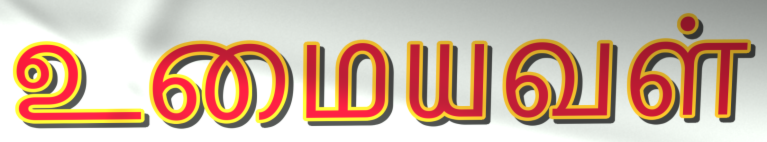
உமையவள்